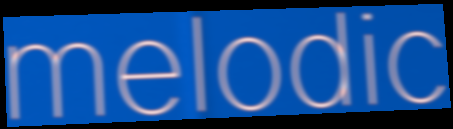
melodic